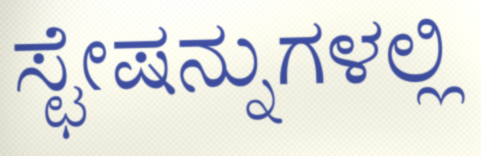
ಸ್ಟೇಷನ್ನುಗಳಲ್ಲಿ